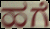
ಹಗೆ